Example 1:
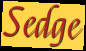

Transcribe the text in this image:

Sedge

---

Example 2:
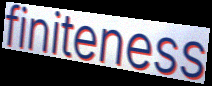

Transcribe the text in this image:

finiteness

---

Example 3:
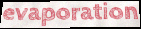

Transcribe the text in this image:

evaporation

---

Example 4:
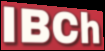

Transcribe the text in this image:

IBCh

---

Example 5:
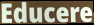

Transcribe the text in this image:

Educere